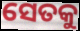
ସେତକୁ